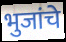
भुजांचे